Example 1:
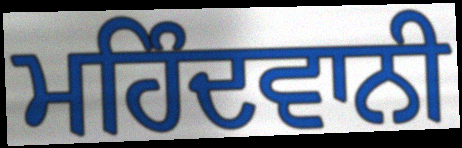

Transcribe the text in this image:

ਮਹਿੰਦਵਾਨੀ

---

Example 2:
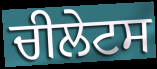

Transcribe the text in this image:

ਚੀਲੇਟਸ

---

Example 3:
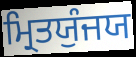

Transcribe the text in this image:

ਮ੍ਰਿਤਯੁੰਜਯ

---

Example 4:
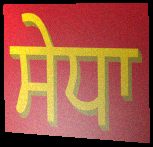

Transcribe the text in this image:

ਸੇਧਾ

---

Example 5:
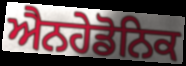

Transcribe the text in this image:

ਐਨਹੇਡੋਨਿਕ